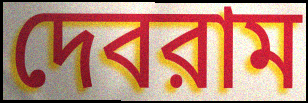
দেবরাম